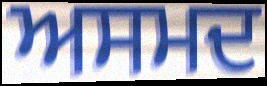
ਅਸਮਦ